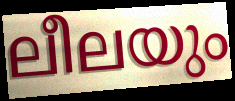
ലീലയും